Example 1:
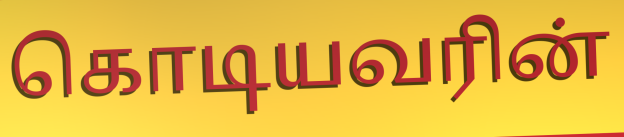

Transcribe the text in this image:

கொடியவரின்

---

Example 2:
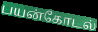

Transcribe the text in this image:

பயன்கோடல்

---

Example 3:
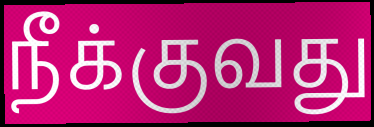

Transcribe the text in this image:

நீக்குவது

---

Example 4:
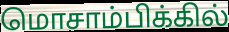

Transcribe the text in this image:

மொசாம்பிக்கில்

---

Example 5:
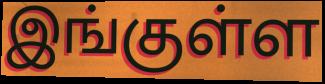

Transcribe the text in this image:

இங்குள்ள